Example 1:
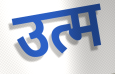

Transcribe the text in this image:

उत्म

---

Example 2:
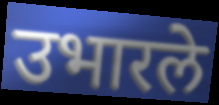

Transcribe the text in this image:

उभारले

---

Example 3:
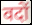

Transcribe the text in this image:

वदों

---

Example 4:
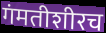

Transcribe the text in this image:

गंमतीशीरच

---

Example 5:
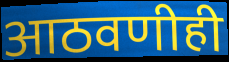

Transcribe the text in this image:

आठवणीही